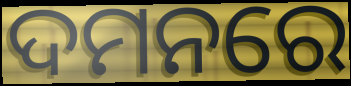
ଦମନରେ